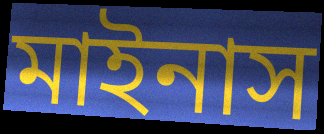
মাইনাস